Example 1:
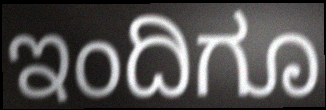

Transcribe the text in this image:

ಇಂದಿಗೂ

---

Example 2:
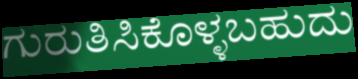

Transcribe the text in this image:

ಗುರುತಿಸಿಕೊಳ್ಳಬಹುದು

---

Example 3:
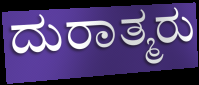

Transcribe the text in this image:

ದುರಾತ್ಮರು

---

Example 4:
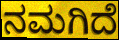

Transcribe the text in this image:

ನಮಗಿದೆ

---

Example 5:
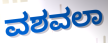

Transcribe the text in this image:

ವಶವಲಾ